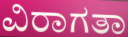
ವಿರಾಗತಾ